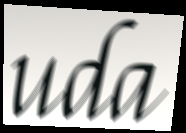
uda